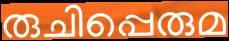
രുചിപ്പെരുമ